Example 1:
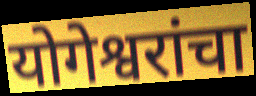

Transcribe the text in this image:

योगेश्वरांचा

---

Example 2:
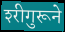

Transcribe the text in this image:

श्रीगुरूने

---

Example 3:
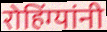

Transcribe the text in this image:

रोहिंग्यांनी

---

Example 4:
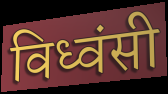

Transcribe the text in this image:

विध्वंसी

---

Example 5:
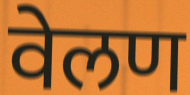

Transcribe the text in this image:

वेलण